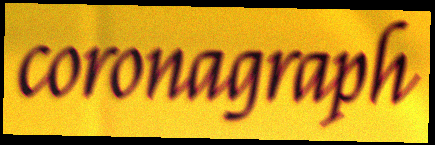
coronagraph